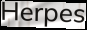
Herpes